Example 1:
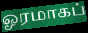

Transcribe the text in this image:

ஓரமாகப்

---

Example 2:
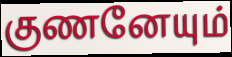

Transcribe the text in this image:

குணனேயும்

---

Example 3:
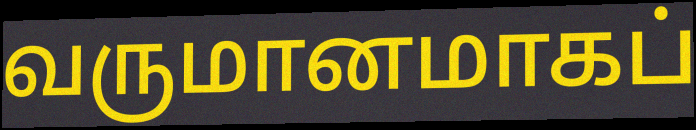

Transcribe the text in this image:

வருமானமாகப்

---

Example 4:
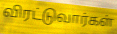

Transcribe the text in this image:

விரட்டுவார்கள்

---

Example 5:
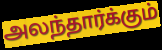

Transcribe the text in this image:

அலந்தார்க்கும்